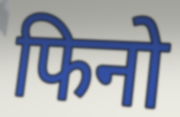
फिनो